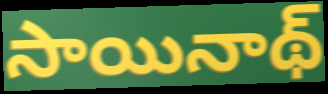
సాయినాథ్